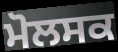
ਮੋਲਸਕ